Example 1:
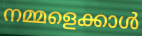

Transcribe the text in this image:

നമ്മളെക്കാൾ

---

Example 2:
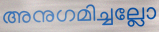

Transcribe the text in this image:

അനുഗമിച്ചല്ലോ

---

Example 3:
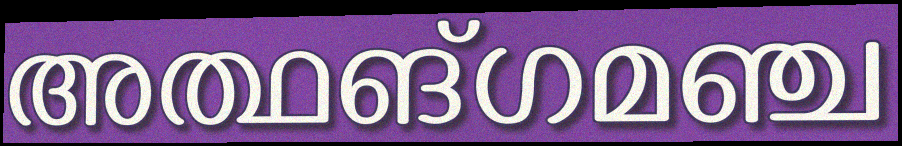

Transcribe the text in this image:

അത്ഥങ്ഗമഞ്ച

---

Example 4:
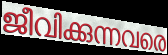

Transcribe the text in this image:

ജീവിക്കുന്നവരെ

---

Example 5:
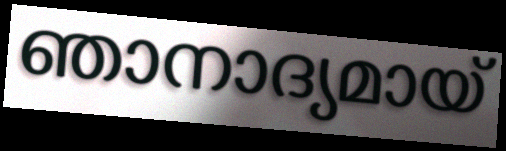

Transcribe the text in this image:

ഞാനാദ്യമായ്